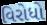
વિરોધો